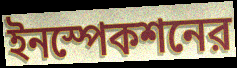
ইনস্পেকশনের